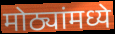
मोठ्यांमध्ये